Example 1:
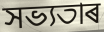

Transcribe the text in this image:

সভ্যতাৰ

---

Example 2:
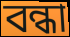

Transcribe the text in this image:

বন্ধা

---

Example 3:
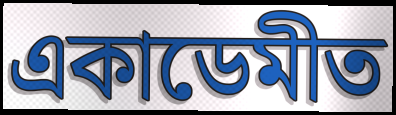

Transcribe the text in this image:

একাডেমীত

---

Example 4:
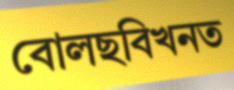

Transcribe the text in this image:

বোলছবিখনত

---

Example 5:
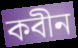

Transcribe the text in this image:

কবীন